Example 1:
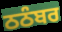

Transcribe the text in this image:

ਠਠੰਬਰ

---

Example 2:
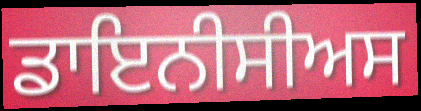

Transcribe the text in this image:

ਡਾਇਨੀਸੀਅਸ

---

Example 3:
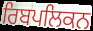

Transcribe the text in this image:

ਰਿਬਪਲਿਕਨ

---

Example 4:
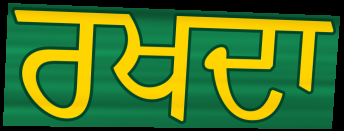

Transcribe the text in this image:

ਰਖਦਾ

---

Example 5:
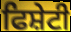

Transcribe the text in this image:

ਫਿਸ਼ੇਟੀ